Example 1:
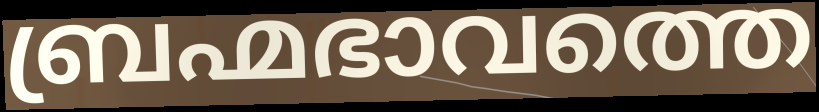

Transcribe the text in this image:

ബ്രഹ്മഭാവത്തെ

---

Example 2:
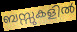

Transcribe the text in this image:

ബസ്സുകളിൽ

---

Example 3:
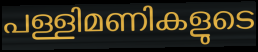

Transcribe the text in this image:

പള്ളിമണികളുടെ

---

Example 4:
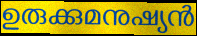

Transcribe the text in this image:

ഉരുക്കുമനുഷ്യൻ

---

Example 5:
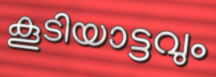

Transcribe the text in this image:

കൂടിയാട്ടവും